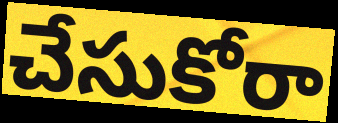
చేసుకోరా